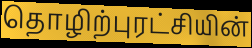
தொழிற்புரட்சியின்